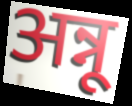
अन्नू